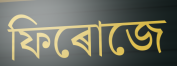
ফিৰোজে